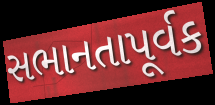
સભાનતાપૂર્વક